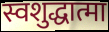
स्वशुद्धात्मा